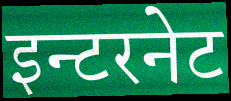
इन्टरनेट